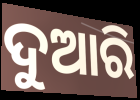
ଦୁଆରି